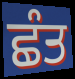
ਛੰਤ